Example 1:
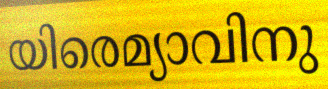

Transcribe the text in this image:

യിരെമ്യാവിനു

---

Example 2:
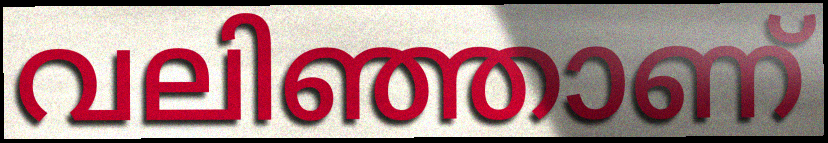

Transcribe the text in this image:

വലിഞ്ഞാണ്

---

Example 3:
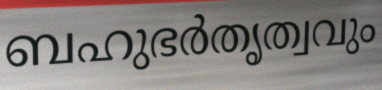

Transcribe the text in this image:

ബഹുഭർതൃത്വവും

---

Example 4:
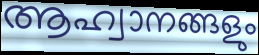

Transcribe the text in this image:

ആഹ്വാനങ്ങളും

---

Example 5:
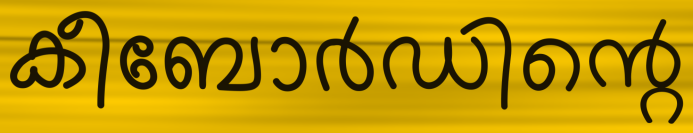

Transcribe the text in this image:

കീബോർഡിന്റെ